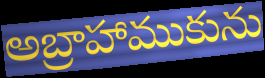
అబ్రాహాముకును